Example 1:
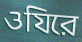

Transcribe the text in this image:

ওযিরে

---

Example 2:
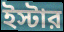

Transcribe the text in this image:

ইস্টার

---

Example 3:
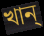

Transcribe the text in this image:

খান্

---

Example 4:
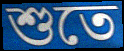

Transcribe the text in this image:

শুতে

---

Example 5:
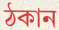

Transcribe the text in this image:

ঠকান